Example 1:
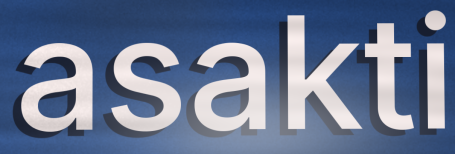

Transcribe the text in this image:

asakti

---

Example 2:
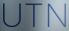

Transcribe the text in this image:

UTN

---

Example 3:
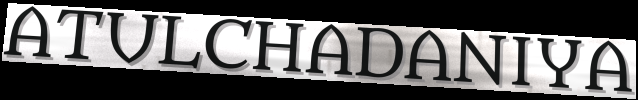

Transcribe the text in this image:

ATULCHADANIYA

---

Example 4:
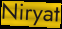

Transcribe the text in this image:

Niryat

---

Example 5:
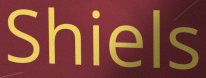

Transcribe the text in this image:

Shiels